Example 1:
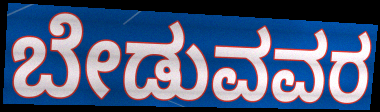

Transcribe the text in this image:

ಬೇಡುವವರ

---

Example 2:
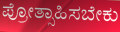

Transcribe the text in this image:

ಪ್ರೋತ್ಸಾಹಿಸಬೇಕು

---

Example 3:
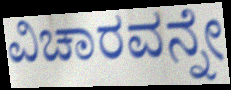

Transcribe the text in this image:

ವಿಚಾರವನ್ನೇ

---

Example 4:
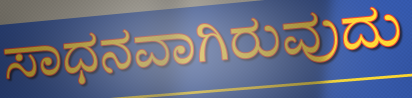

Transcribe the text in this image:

ಸಾಧನವಾಗಿರುವುದು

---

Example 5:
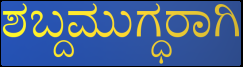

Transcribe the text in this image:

ಶಬ್ದಮುಗ್ಧರಾಗಿ